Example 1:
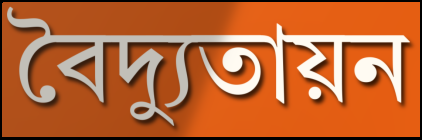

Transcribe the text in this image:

বৈদ্যুতায়ন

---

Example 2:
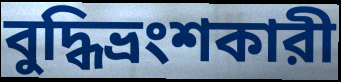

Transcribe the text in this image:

বুদ্ধিভ্রংশকারী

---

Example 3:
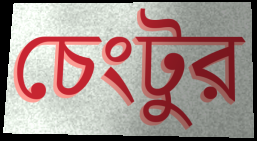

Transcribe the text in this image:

চেংটুর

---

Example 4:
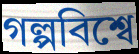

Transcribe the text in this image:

গল্পবিশ্বে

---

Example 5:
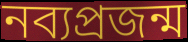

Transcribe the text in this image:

নব্যপ্রজন্ম